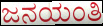
ಜನಯಂತಿ